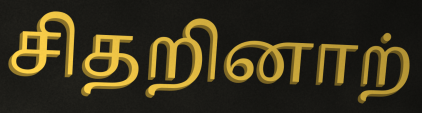
சிதறினாற்